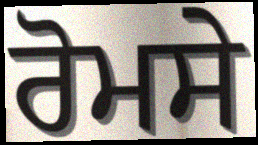
ਰੋਮਸੇ